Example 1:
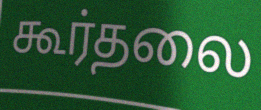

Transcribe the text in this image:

கூர்தலை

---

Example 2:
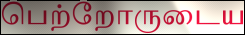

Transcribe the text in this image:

பெற்றோருடைய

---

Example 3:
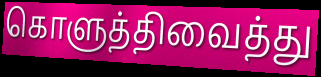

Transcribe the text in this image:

கொளுத்திவைத்து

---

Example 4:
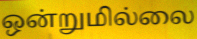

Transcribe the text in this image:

ஒன்றுமில்லை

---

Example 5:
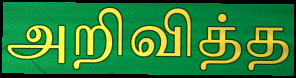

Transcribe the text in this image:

அறிவித்த